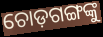
ଚୋଡ଼ଗଙ୍ଗଙ୍କୁ